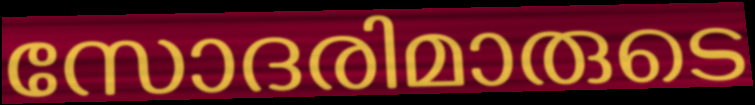
സോദരിമാരുടെ